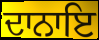
ਦਾਨਾਇ